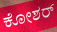
ಕೋಶರ್